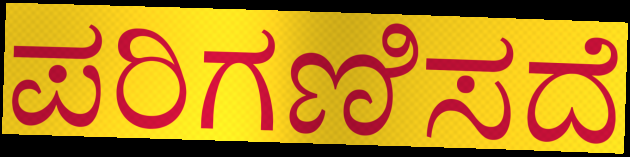
ಪರಿಗಣಿಸದೆ